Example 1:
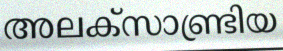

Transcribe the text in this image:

അലക്സാണ്ട്രിയ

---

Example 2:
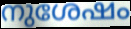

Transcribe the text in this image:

നുശേഷം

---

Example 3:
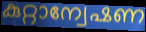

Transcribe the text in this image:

കുറ്റാന്വേഷണ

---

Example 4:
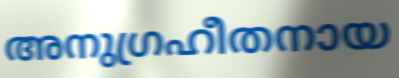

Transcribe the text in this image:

അനുഗ്രഹീതനായ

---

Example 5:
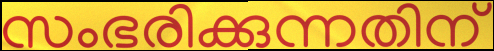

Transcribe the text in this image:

സംഭരിക്കുന്നതിന്